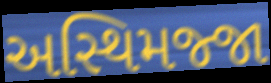
અસ્થિમજ્જા